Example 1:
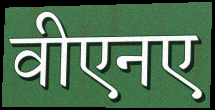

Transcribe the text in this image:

वीएनए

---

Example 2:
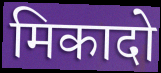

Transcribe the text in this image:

मिकादो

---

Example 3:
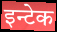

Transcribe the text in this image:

इन्टेक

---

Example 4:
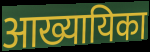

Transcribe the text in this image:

आख्यायिका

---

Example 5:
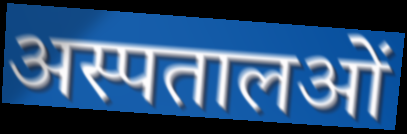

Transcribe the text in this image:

अस्पतालओं